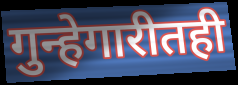
गुन्हेगारीतही